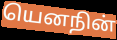
யெனநின்